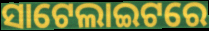
ସାଟେଲାଇଟରେ